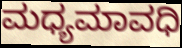
ಮಧ್ಯಮಾವಧಿ